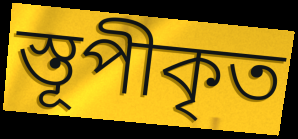
স্তূপীকৃত